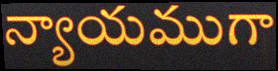
న్యాయముగా